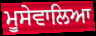
ਮੂਸੇਵਾਲਿਆ